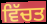
ਵਿੱਚਤ